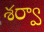
శర్వా